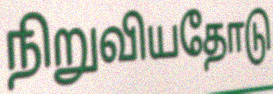
நிறுவியதோடு